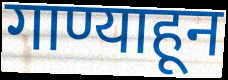
गाण्याहून